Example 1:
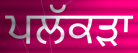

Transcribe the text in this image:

ਪਲੱਕੜਾ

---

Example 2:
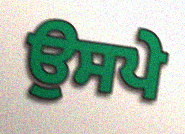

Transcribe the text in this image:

ਉਸਪੇ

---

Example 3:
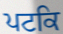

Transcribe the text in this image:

ਪਟਕਿ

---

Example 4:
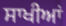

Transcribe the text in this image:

ਸਾਖੀਆਂ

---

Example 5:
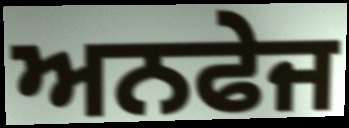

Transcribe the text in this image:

ਅਨਫੇਜ